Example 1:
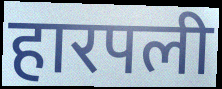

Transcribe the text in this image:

हारपली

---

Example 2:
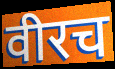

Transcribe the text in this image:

वीरच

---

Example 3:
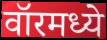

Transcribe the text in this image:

वॉरमध्ये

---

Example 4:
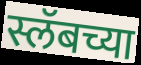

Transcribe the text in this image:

स्लॅबच्या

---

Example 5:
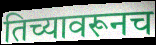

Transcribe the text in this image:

तिच्यावरूनच